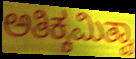
ಅತಿಕ್ಕಮಿತ್ವಾ